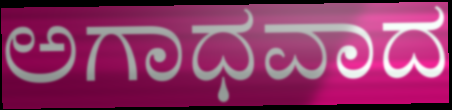
ಅಗಾಧವಾದ